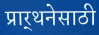
प्रार्थनेसाठी